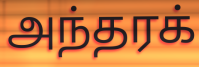
அந்தரக்